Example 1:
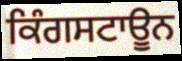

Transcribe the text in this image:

ਕਿੰਗਸਟਾਊਨ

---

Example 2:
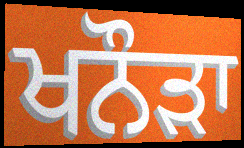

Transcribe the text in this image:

ਖਨੌੜਾ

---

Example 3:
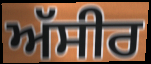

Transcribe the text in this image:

ਅੱਸੀਰ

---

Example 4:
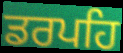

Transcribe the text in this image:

ਡਰਪਹਿ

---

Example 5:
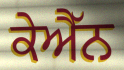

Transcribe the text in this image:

ਕੇਐੱਨ